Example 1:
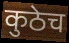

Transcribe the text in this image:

कुठेच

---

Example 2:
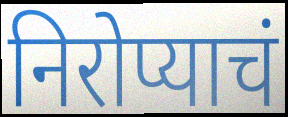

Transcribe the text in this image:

निरोप्याचं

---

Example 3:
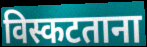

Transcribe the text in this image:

विस्कटताना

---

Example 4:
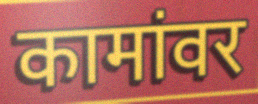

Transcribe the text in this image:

कामांवर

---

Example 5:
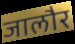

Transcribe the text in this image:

जालौर